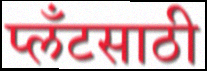
प्लँटसाठी